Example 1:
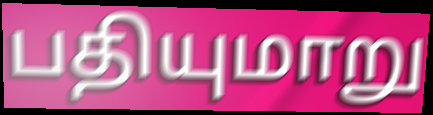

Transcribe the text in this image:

பதியுமாறு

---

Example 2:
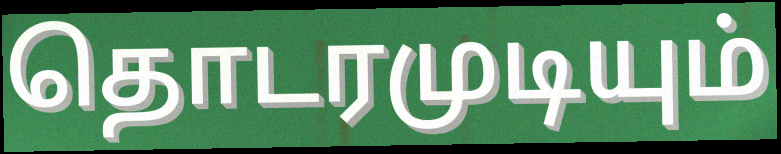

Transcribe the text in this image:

தொடரமுடியும்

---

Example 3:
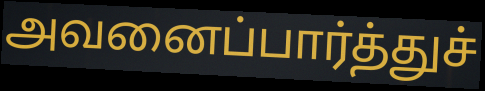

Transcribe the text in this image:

அவனைப்பார்த்துச்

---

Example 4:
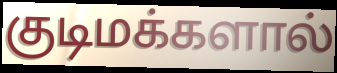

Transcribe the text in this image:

குடிமக்களால்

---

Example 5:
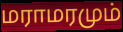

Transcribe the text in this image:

மராமரமும்